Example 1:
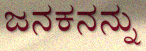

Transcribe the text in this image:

ಜನಕನನ್ನು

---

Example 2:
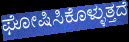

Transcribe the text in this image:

ಘೋಷಿಸಿಕೊಳ್ಳುತ್ತದೆ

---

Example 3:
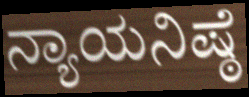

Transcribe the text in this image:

ನ್ಯಾಯನಿಷ್ಠೆ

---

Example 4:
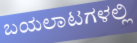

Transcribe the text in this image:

ಬಯಲಾಟಗಳಲ್ಲಿ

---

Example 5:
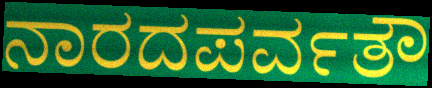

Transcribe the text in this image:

ನಾರದಪರ್ವತೌ